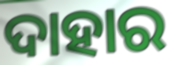
ଦାହାର